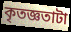
কৃতজ্ঞতাটা